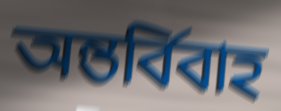
অন্তর্বিবাহ